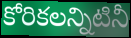
కోరికలన్నిటినీ